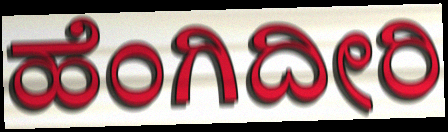
ಹೆಂಗಿದೀರಿ